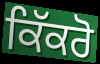
ਕਿੱਕਰੋ